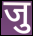
जु